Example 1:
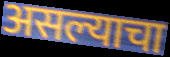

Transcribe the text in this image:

असल्‍याचा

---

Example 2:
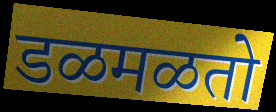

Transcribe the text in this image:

डळमळतो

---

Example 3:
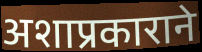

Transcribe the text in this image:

अशाप्रकाराने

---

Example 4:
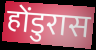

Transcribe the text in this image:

होंडुरास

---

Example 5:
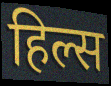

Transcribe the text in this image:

हिल्स